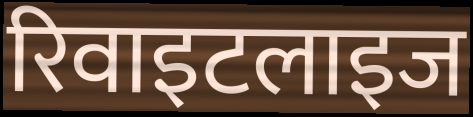
रिवाइटलाइज